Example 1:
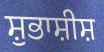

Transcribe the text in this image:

ਸ਼ੁਭਾਸ਼ੀਸ਼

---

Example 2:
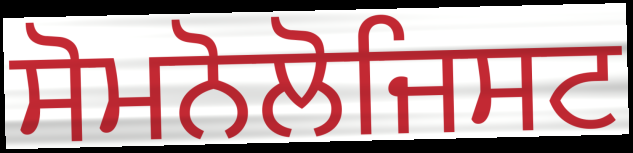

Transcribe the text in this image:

ਸੋਮਨੋਲੋਜਿਸਟ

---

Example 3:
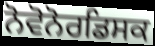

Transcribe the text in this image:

ਨੋਵੋਨੋਰਡਿਸਕ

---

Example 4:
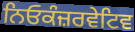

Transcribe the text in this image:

ਨਿਓਕੰਜ਼ਰਵੇਟਿਵ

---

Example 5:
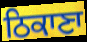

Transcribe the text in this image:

ਠਿਕਾਣਾ